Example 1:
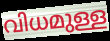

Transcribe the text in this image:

വിധമുള്ള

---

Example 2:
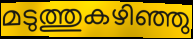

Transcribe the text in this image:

മടുത്തുകഴിഞ്ഞു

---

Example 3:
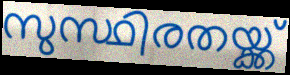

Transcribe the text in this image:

സുസ്ഥിരതയ്ക്ക്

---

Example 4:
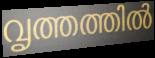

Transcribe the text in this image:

വൃത്തത്തിൽ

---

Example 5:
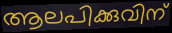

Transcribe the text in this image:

ആലപിക്കുവിന്